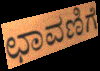
ಛಾವಣಿಗೆ